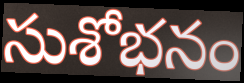
సుశోభనం